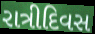
રાત્રીદિવસ